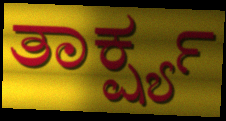
ತಾರ್ಕ್ಷ್ಯ